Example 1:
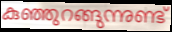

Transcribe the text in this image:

കുഞ്ഞുറങ്ങുന്നുണ്ട്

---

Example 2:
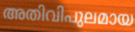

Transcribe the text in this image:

അതിവിപുലമായ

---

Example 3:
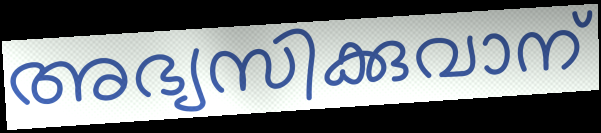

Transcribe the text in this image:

അഭ്യസിക്കുവാന്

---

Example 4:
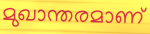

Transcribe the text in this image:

മുഖാന്തരമാണ്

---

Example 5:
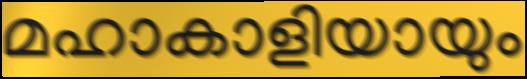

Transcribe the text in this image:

മഹാകാളിയായും